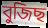
বুজিছ